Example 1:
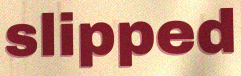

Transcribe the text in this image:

slipped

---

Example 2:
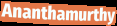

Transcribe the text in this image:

Ananthamurthy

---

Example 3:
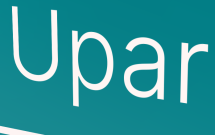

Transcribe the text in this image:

Upar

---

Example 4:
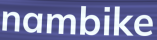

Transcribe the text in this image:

nambike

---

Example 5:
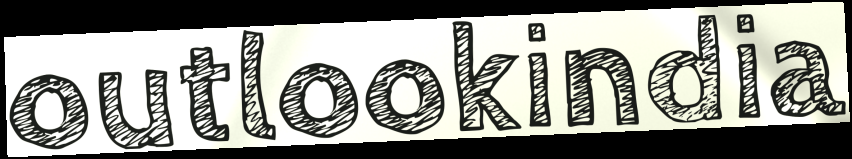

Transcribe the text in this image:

outlookindia